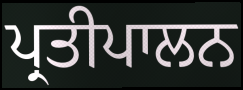
ਪ੍ਰਤੀਪਾਲਨ